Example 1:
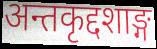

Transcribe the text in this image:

अन्तकृद्दशाङ्ग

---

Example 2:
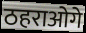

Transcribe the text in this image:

ठहराओगे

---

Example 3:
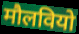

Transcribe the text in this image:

मौलवियो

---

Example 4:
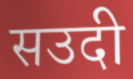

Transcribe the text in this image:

सउदी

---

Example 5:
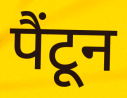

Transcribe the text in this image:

पैंटून